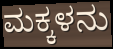
ಮಕ್ಕಳನು